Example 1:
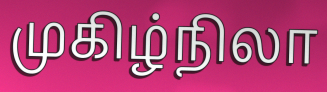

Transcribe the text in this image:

முகிழ்நிலா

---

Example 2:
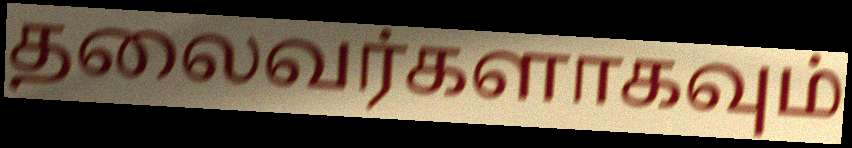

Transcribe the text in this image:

தலைவர்களாகவும்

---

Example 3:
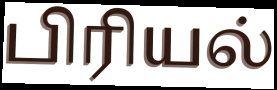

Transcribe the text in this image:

பிரியல்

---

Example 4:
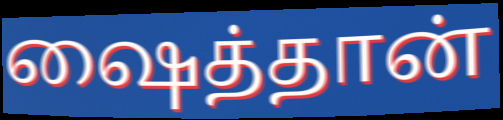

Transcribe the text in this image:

ஷைத்தான்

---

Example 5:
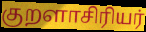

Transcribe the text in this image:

குறளாசிரியர்